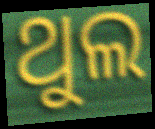
ଥୁଲ